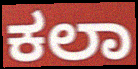
ಕಲಾ